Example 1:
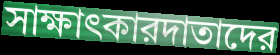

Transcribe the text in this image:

সাক্ষাৎকারদাতাদের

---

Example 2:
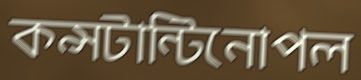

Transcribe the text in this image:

কন্সটান্টিনোপল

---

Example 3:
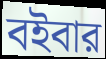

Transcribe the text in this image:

বইবার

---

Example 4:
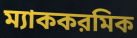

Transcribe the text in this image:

ম্যাককরমিক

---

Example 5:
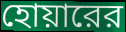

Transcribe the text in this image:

হোয়ারের